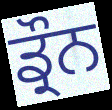
ਡ੍ਰੌਨ